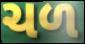
ચળ